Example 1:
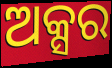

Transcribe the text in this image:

ଅକ୍ସର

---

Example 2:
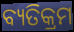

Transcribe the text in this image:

ବ୍ଯତିକ୍ରମ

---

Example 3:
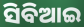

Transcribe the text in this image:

ସିବିଆଇ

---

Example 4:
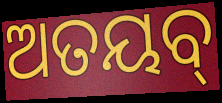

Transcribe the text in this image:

ଅତୟବ୍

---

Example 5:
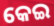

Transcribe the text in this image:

କେଇ